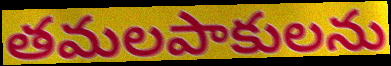
తమలపాకులను